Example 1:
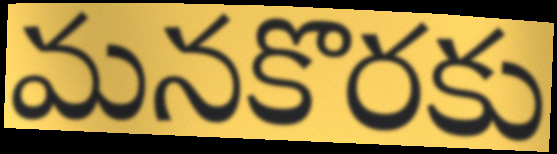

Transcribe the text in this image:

మనకొరకు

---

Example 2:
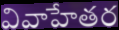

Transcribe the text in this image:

వివాహేతర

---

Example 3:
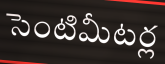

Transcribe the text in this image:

సెంటిమీటర్ల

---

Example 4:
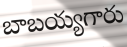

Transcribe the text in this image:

బాబయ్యగారు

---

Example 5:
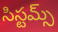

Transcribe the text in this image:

సిస్టమ్స్